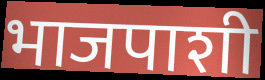
भाजपाशी